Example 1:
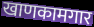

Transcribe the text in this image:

खाणकामगार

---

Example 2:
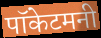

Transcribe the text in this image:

पॉकेटमनी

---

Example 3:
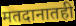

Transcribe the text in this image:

मतदानातही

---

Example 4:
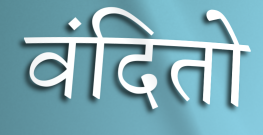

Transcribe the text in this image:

वंदितो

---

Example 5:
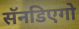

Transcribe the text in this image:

सॅनडिएगो